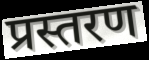
प्रस्तरण